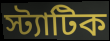
স্ট্যাটিক